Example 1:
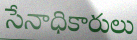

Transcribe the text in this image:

సేనాధికారులు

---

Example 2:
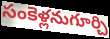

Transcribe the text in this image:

సంకెళ్లనుగూర్చి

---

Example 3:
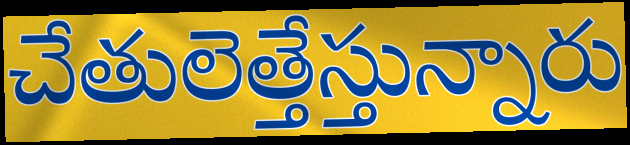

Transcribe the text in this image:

చేతులెత్తేస్తున్నారు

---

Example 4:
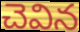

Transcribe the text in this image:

చెవిన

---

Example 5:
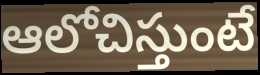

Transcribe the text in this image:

ఆలోచిస్తుంటే